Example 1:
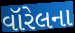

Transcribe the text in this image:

વૉરેલના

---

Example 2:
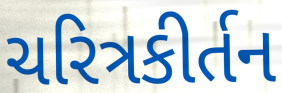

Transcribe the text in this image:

ચરિત્રકીર્તન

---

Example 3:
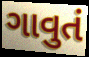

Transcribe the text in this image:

ગાવુતં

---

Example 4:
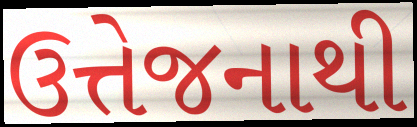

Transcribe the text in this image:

ઉત્તેજનાથી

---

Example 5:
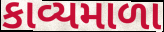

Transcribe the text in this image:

કાવ્યમાળા